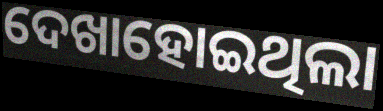
ଦେଖାହୋଇଥିଲା